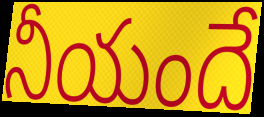
నీయందే